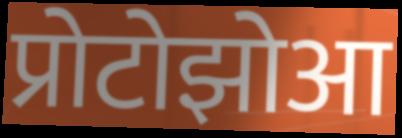
प्रोटोझोआ